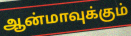
ஆன்மாவுக்கும்